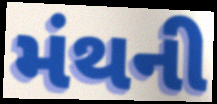
મંથની